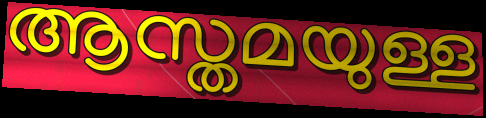
ആസ്തമയുള്ള